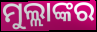
ମୁଲ୍ଲାଙ୍କର